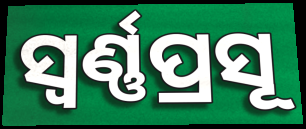
ସ୍ବର୍ଣ୍ଣପ୍ରସୂ